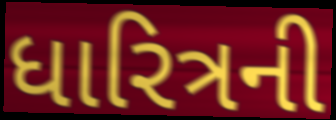
ધારિત્રની